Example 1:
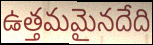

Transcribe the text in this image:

ఉత్తమమైనదేది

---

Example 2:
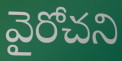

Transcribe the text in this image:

వైరోచని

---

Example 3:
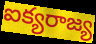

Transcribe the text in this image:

ఐక్యరాజ్య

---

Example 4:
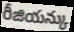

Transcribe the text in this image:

రీజియన్కు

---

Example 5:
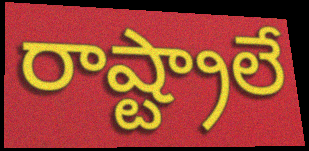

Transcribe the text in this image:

రాష్ట్రాలే